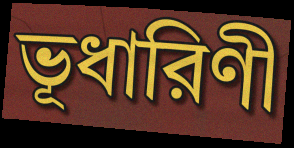
ভূধারিণী